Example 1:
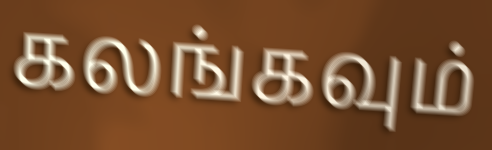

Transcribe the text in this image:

கலங்கவும்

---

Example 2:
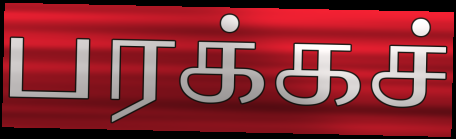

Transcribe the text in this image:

பரக்கச்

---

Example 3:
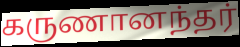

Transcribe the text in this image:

கருணானந்தர்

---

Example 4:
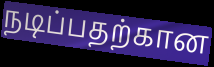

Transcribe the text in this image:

நடிப்பதற்கான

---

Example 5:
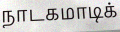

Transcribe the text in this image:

நாடகமாடிக்